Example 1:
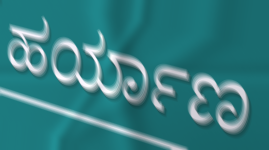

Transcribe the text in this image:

ಹರ್ಯಾಣ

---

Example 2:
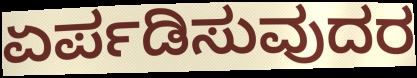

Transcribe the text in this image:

ಏರ್ಪಡಿಸುವುದರ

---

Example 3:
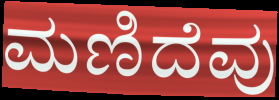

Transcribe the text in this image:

ಮಣಿದೆವು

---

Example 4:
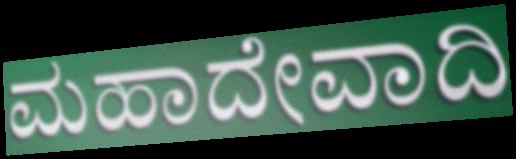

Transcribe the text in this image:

ಮಹಾದೇವಾದಿ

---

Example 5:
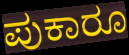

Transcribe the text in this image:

ಪುಕಾರೂ